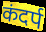
कंदर्प